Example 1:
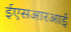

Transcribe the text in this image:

ईएसआरआई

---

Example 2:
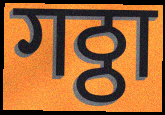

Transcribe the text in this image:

गठ्ठा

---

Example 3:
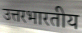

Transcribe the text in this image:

उत्तरभारतीय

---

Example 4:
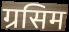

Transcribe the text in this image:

ग्रसिम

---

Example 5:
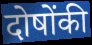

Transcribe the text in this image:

दोषोंकी